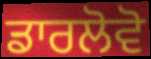
ਡਾਰਲੋਵੋ